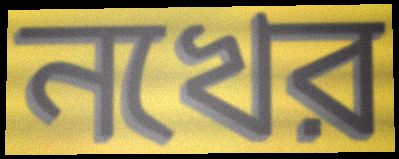
নখের